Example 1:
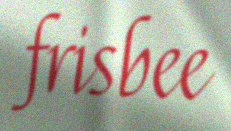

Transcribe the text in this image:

frisbee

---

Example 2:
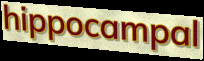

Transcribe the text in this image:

hippocampal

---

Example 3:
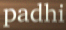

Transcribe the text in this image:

padhi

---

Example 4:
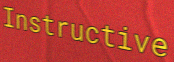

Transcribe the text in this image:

Instructive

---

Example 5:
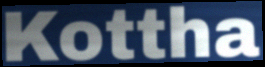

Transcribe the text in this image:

Kottha